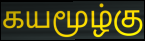
கயமூழ்கு